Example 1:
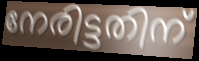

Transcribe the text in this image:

നേരിട്ടതിന്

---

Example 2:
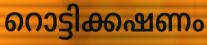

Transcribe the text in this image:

റൊട്ടിക്കഷണം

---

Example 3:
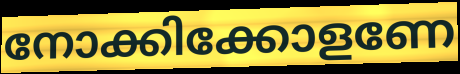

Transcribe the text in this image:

നോക്കിക്കോളണേ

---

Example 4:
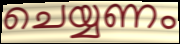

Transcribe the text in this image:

ചെയ്യണം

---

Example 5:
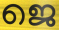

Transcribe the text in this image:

ജെ